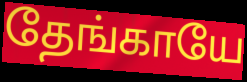
தேங்காயே